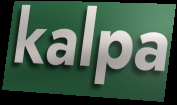
kalpa